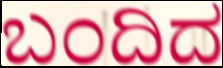
ಬಂದಿದ